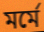
মর্মে